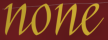
none